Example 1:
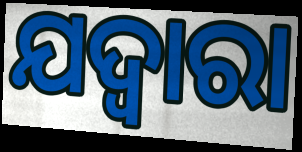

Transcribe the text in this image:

ଯଦ୍ୱାରା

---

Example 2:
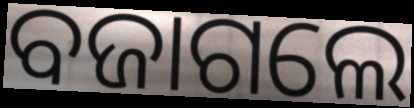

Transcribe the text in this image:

ବଜାଗଲେ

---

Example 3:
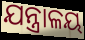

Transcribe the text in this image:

ଯନ୍ତ୍ରାଳୟ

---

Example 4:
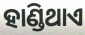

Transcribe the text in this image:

ହାଣ୍ଡିଥାଏ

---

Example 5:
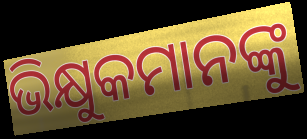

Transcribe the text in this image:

ଭିକ୍ଷୁକମାନଙ୍କୁ